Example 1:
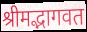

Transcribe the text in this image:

श्रीमद्भागवत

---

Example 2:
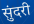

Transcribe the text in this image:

सुंदरी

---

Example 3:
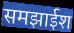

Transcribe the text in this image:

समझाईश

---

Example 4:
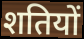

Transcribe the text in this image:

शतियों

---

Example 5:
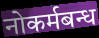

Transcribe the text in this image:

नोकर्मबन्ध